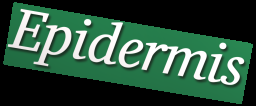
Epidermis